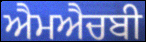
ਐਮਐਚਬੀ